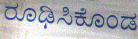
ರೂಢಿಸಿಕೊಂಡ